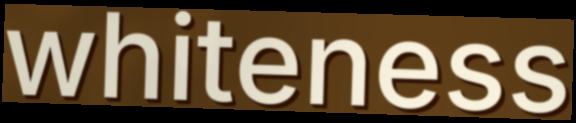
whiteness